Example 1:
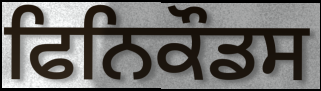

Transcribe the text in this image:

ਫਿਨਿਕੌਡਸ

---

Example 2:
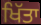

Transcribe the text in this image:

ਖਿੱਤਾ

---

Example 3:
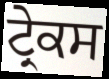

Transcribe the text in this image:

ਟ੍ਰੇਕਸ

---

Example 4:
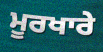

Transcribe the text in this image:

ਮੂਰਖਾਰੇ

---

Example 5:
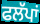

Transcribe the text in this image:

ਫਲੱਪਾਂ